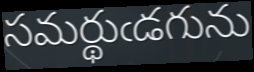
సమర్థుఁడగును